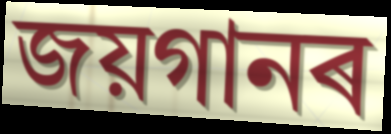
জয়গানৰ